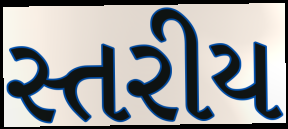
સ્તરીય